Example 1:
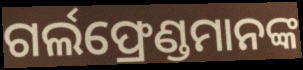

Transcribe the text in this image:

ଗର୍ଲଫ୍ରେଣ୍ଡମାନଙ୍କ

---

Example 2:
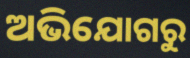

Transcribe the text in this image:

ଅଭିଯୋଗରୁ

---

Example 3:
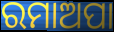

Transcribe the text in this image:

ରମାଅପା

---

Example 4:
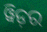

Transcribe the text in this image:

ୱିଡ଼ର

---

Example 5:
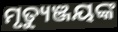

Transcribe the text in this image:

ମୃତ୍ୟୁଞ୍ଜୟଙ୍କ